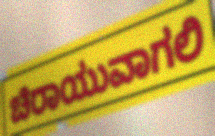
ಚಿರಾಯುವಾಗಲಿ